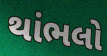
થાંભલો